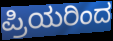
ಪ್ರಿಯರಿಂದ